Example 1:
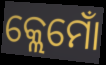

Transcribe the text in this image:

କ୍ଲେମୋଁ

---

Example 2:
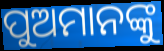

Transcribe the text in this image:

ପୁଅମାନଙ୍କୁ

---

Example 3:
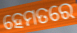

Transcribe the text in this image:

ହେମତରେ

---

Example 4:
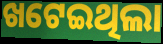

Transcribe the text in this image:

ଖଟେଇଥିଲା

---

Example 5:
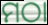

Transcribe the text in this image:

ମଠା